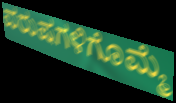
ವರುಷಗಳಿಗೊಮ್ಮೆ